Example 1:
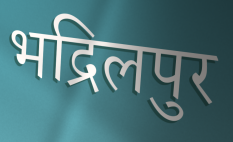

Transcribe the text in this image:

भद्रिलपुर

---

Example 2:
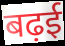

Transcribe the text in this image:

बढ़ई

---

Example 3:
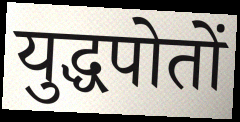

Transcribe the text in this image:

युद्धपोतों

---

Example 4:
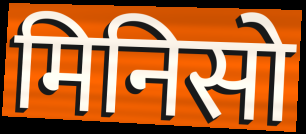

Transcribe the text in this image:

मिनिसो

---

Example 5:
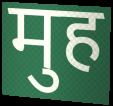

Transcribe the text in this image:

मुह